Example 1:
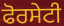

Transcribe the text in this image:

ਫੋਰਸੇਟੀ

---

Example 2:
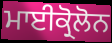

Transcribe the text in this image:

ਮਾਈਕ੍ਰੋਲੋਨ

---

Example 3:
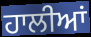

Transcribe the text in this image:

ਹਾਲੀਆਂ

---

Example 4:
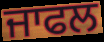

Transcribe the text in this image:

ਜਾਫਲ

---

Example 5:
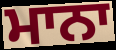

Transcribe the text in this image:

ਮਾਨਾ